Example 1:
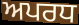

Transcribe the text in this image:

ਅਪਰਧ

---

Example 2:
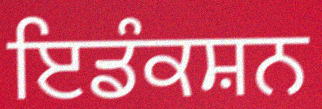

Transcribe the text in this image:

ਇਡੰਕਸ਼ਨ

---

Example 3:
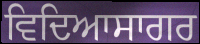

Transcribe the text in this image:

ਵਿਦਿਆਸਾਗਰ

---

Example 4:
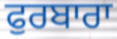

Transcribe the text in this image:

ਫੁਰਬਾਰਾ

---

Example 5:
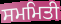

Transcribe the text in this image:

ਸਮਮਿਤੀ